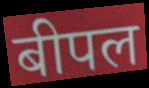
बीपल